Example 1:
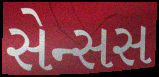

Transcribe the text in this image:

સેન્સસ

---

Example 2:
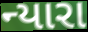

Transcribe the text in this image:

ન્યારા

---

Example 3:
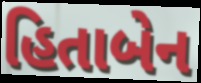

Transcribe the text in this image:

હિતાબેન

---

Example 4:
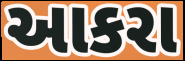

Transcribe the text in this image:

આકરા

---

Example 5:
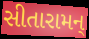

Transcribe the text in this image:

સીતારામન્